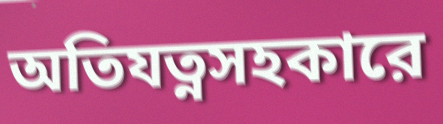
অতিযত্নসহকারে